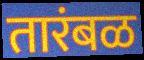
तारंबळ